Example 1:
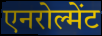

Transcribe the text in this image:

एनरोल्मेंट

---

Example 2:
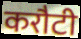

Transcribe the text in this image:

करौटी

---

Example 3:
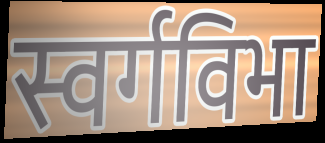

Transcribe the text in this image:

स्वर्गविभा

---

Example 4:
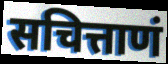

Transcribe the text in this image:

सचित्ताणं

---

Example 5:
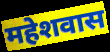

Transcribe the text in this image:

महेशवास